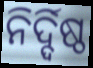
ନିର୍ଦ୍ଦିଷ୍ଠ